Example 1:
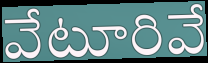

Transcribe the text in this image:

వేటూరివే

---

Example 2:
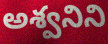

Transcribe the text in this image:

అశ్వనిని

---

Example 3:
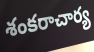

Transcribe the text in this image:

శంకరాచార్య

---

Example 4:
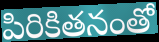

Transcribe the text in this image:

పిరికితనంతో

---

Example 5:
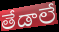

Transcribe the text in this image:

తేడాలే